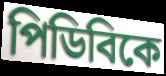
পিডিবিকে